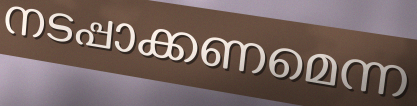
നടപ്പാക്കണമെന്ന